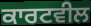
ਕਾਰਟਵੀਲ